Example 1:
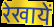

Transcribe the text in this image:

रेखायें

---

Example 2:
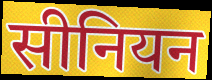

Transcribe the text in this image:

सीनियन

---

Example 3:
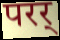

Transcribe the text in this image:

परर्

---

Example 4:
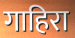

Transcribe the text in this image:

गाहिरा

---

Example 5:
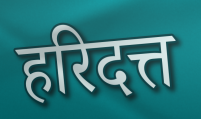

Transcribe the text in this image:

हरिदत्त